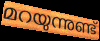
മറയുന്നുണ്ട്